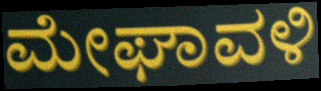
ಮೇಘಾವಳಿ